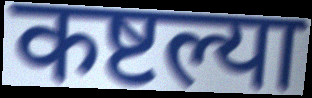
कष्टल्या